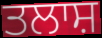
ਤਲਾਸ਼